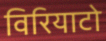
विरियाटो